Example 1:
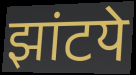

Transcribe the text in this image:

झांटये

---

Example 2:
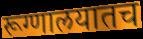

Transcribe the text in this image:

रूग्णालयातच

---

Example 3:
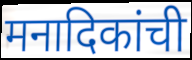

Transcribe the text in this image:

मनादिकांची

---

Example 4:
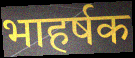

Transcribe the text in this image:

भाहर्षक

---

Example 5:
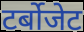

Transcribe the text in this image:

टर्बोजेट